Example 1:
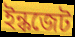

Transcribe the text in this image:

ইন্কজেট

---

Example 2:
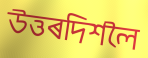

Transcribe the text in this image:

উত্তৰদিশলৈ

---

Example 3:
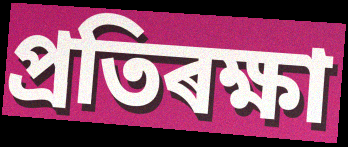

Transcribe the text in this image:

প্ৰতিৰক্ষা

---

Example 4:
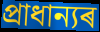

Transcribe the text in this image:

প্ৰাধান্যৰ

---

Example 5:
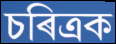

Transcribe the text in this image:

চৰিত্ৰক